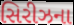
સિરીઝના